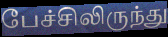
பேச்சிலிருந்து